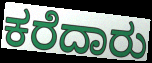
ಕರೆದಾರು